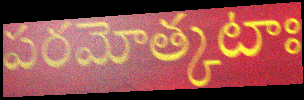
పరమోత్కటాః